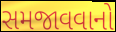
સમજાવવાનો